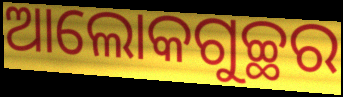
ଆଲୋକଗୁଚ୍ଛର